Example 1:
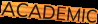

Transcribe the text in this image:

ACADEMIC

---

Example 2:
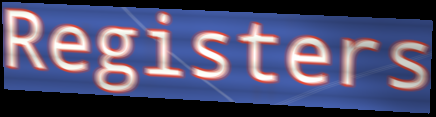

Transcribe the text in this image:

Registers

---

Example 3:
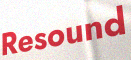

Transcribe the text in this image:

Resound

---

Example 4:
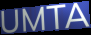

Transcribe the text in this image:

UMTA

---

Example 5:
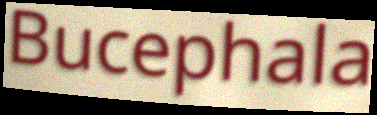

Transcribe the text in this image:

Bucephala